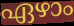
ഏഴാം